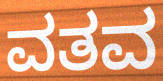
ವತವ